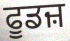
ਫੂਡਜ਼